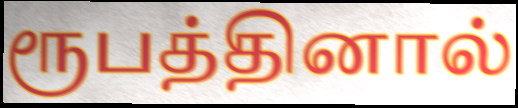
ரூபத்தினால்